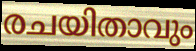
രചയിതാവും